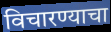
विचारण्याचा